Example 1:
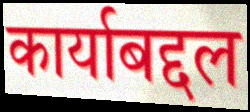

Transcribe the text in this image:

कार्याबद्दल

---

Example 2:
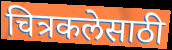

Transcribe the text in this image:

चित्रकलेसाठी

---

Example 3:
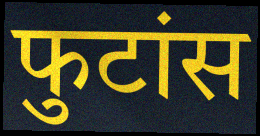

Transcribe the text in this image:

फुटांस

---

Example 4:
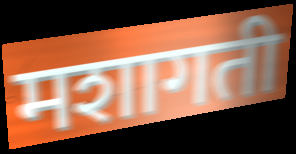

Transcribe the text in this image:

मशागती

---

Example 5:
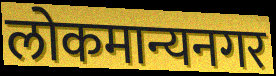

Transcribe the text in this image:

लोकमान्यनगर